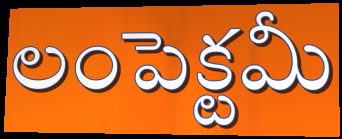
లంపెక్టమీ